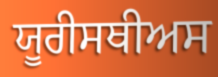
ਯੂਰੀਸਥੀਅਸ